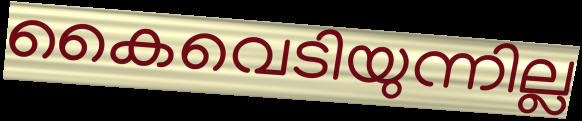
കൈവെടിയുന്നില്ല